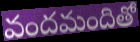
వందమందితో